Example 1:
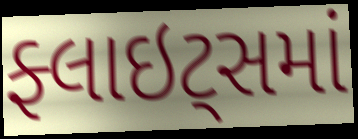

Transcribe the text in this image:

ફ્લાઇટ્સમાં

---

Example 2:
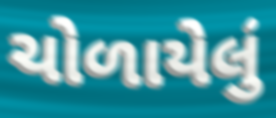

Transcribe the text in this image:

ચોળાયેલું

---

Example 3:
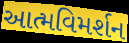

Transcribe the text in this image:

આત્મવિમર્શન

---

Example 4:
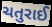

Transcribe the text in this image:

ચતુરાઈ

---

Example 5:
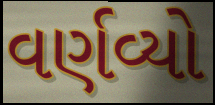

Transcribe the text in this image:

વર્ણવ્યો